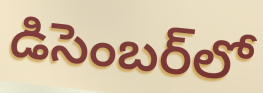
డిసెంబర్‌లో